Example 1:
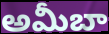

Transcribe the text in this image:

అమీబా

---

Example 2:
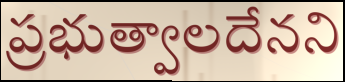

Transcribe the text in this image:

ప్రభుత్వాలదేనని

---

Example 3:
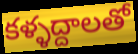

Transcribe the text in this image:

కళ్ళద్దాలతో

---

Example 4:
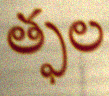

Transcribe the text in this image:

త్ఫల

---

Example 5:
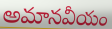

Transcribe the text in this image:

అమానవీయం